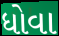
ધોવા